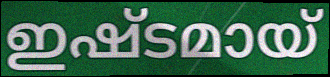
ഇഷ്ടമായ്